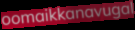
oomaikkanavugal